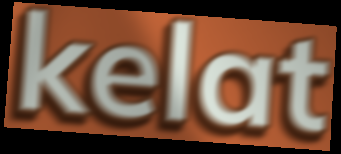
kelat